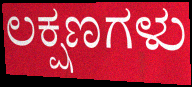
ಲಕ್ಷಣಗಳು